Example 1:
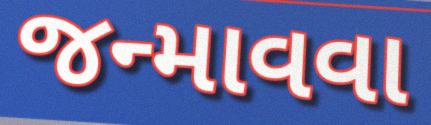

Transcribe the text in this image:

જન્માવવા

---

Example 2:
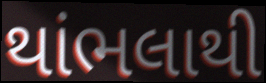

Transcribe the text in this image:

થાંભલાથી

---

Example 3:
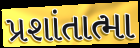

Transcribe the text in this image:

પ્રશાંતાત્મા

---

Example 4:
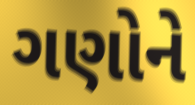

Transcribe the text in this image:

ગણોને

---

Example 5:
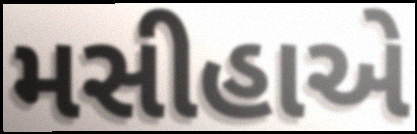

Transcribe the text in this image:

મસીહાએ